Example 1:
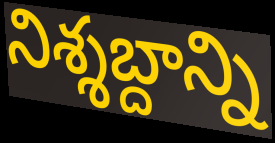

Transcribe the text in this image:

నిశ్శబ్దాన్ని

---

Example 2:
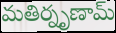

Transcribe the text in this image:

మతిర్నృణామ్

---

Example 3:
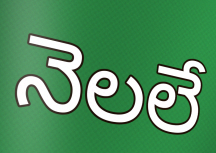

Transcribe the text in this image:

నెలలే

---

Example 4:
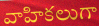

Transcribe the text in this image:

వాహికలుగా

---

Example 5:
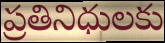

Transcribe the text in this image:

ప్రతినిధులకు